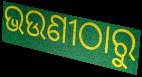
ଭଉଣୀଠାରୁ